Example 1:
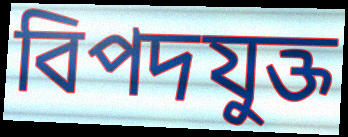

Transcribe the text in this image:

বিপদযুক্ত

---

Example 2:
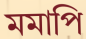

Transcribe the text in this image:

মমাপি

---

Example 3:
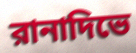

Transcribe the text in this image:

রানাদিভে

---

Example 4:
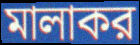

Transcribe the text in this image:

মালাকর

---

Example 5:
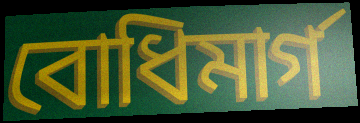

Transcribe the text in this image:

বোধিমার্গ